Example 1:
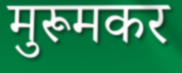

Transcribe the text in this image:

मुरूमकर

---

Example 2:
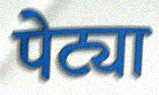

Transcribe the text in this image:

पेट्या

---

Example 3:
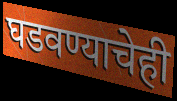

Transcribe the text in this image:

घडवण्याचेही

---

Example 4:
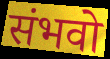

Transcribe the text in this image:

संभवो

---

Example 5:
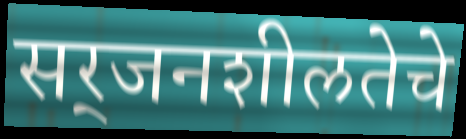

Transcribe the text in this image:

सर्जनशीलतेचे